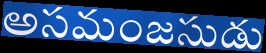
అసమంజసుడు